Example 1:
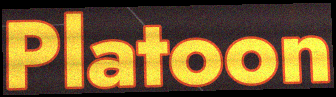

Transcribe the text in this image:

Platoon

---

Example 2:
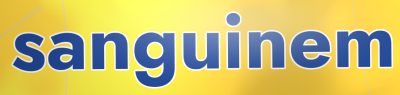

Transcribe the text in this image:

sanguinem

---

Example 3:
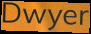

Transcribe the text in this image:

Dwyer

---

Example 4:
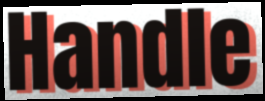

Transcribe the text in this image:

Handle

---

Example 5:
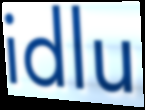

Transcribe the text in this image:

idlu